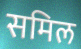
समिल